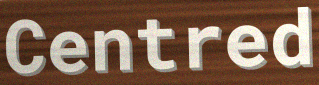
Centred